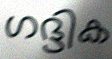
ഗദ്ദിക